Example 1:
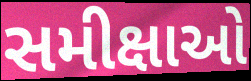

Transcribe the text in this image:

સમીક્ષાઓ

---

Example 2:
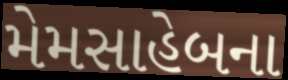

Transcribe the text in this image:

મેમસાહેબના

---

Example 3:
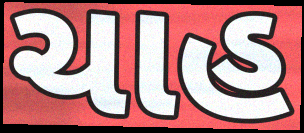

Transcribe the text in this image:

ચાહ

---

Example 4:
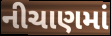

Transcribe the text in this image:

નીચાણમાં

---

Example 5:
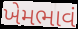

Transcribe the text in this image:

ખેમભાવં